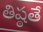
తిష్ఠతే